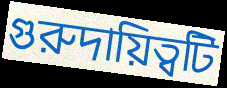
গুরুদায়িত্বটি